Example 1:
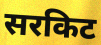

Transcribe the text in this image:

सरकिट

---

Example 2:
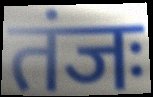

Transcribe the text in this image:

तंजः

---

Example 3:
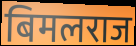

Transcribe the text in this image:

बिमलराज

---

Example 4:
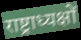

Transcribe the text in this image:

राष्ट्राध्यक्षों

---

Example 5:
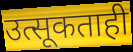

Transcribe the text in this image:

उत्सूकताही